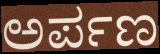
ಅರ್ಪಣ